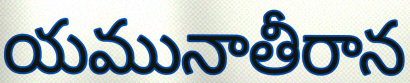
యమునాతీరాన